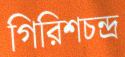
গিরিশচন্দ্র